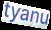
tyanu